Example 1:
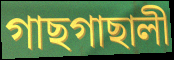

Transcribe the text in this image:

গাছগাছালী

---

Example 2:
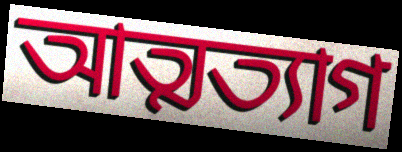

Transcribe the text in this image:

আত্মত্যাগ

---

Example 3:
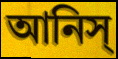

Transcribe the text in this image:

আনিস্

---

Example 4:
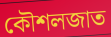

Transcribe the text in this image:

কৌশলজাত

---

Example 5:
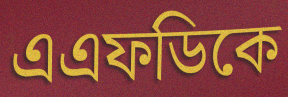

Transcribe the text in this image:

এএফডিকে